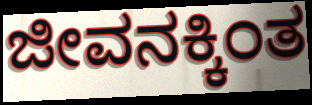
ಜೀವನಕ್ಕಿಂತ